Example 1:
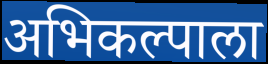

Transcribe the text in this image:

अभिकल्पाला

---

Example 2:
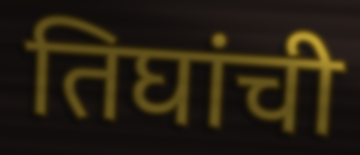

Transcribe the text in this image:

तिघांची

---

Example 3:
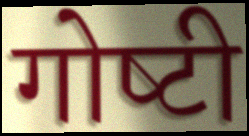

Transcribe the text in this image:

गोष्‍टी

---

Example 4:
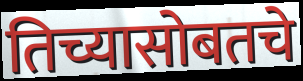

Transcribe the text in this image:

तिच्यासोबतचे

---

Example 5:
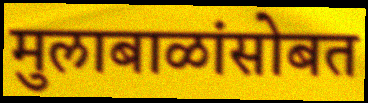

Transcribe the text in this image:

मुलाबाळांसोबत